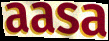
aasa